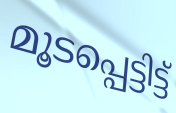
മൂടപ്പെട്ടിട്ട്